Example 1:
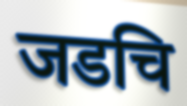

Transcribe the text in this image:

जडचि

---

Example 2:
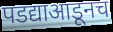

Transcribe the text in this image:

पडद्याआडूनच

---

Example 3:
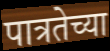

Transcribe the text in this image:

पात्रतेच्या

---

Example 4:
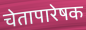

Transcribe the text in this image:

चेतापारेषक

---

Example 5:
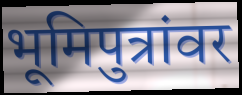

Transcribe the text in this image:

भूमिपुत्रांवर